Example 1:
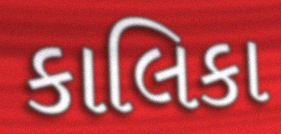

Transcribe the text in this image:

કાલિકા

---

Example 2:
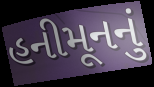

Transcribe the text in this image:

હનીમૂનનું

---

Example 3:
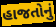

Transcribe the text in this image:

હાજતોનું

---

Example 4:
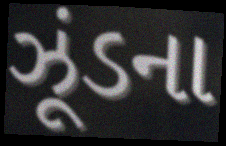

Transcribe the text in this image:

ઝૂંડના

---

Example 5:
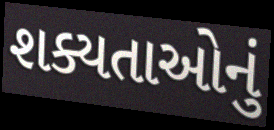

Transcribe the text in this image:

શક્યતાઓનું